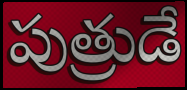
పుత్రుడే